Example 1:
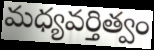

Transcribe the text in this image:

మధ్యవర్తిత్వం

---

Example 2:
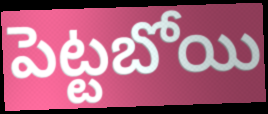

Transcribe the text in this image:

పెట్టబోయి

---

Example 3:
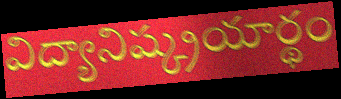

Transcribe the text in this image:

విద్యానిష్క్రయార్థం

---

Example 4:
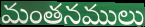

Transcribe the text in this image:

మంతనములు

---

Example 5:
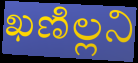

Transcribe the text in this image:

ఖణిల్లని